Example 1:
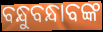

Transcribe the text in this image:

ବନ୍ଧୁବନ୍ଧାବଙ୍କ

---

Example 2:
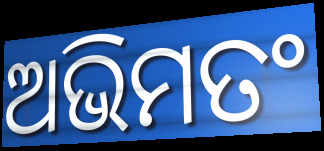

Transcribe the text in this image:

ଅଭିମତଂ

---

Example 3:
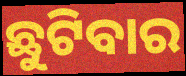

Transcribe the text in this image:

ଛୁଟିବାର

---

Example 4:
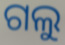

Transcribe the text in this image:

ଗଲୁ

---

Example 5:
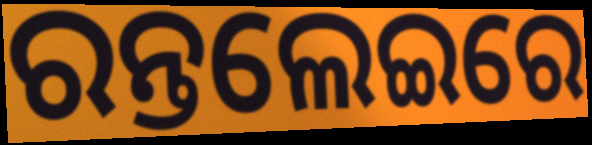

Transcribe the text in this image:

ରନ୍ତଲେଇରେ